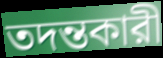
তদন্তকারী